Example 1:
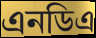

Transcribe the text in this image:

এনডিএ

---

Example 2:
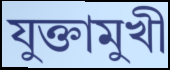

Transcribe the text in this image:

যুক্তামুখী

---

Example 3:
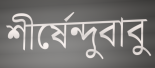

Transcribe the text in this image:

শীর্ষেন্দুবাবু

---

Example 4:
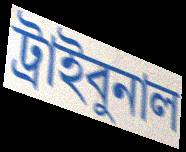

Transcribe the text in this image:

ট্রাইবুনাল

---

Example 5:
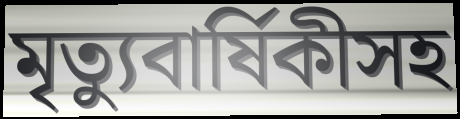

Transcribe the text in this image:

মৃত্যুবার্ষিকীসহ